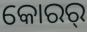
କୋରର୍